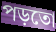
পড়তো